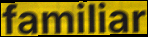
familiar